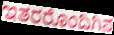
ಇತರರೊಂದಿಗಿನ